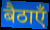
बैठाएँ